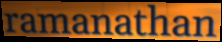
ramanathan